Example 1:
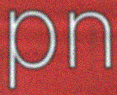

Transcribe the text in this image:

pn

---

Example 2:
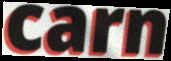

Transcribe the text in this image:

carn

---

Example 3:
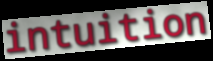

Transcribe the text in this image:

intuition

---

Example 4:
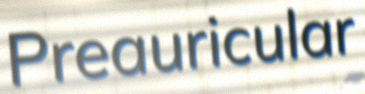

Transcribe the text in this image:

Preauricular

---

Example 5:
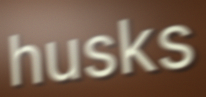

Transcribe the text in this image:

husks